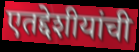
एतद्देशीयांची